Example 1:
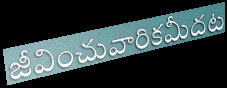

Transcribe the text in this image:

జీవించువారికమీదట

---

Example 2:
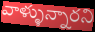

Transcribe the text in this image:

వాళ్ళున్నారని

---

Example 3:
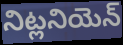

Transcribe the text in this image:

నిట్లనియెన్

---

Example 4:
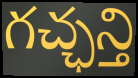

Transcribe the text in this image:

గచ్ఛన్తి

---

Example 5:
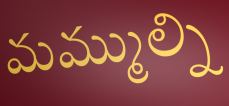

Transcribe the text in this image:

మమ్ముల్ని